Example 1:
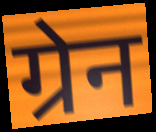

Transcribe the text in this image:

ग्रेन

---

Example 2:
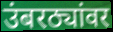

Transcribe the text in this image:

उंबरठ्यांवर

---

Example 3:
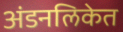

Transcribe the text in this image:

अंडनलिकेत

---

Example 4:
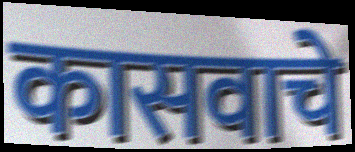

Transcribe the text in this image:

कासवाचे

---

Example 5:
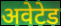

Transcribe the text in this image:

अवेटेड